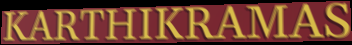
KARTHIKRAMAS